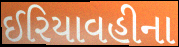
ઈરિયાવહીના